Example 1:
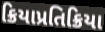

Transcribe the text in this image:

ક્રિયાપ્રતિક્રિયા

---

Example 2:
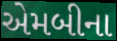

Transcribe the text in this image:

એમબીના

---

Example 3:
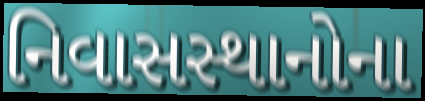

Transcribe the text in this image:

નિવાસસ્થાનોના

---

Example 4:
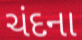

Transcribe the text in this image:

ચંદના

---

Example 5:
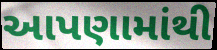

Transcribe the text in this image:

આપણામાંથી